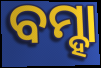
ବମ୍ହା